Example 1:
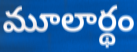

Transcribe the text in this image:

మూలార్థం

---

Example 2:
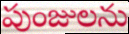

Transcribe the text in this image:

పుంజులను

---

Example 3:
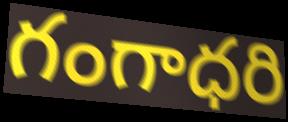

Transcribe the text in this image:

గంగాధరి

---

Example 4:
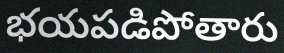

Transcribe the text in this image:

భయపడిపోతారు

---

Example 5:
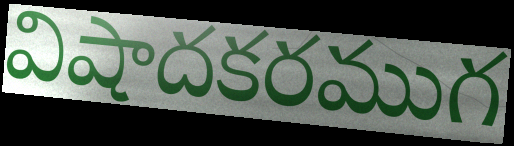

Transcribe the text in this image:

విషాదకరముగ